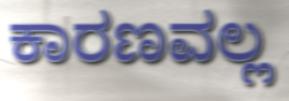
ಕಾರಣವಲ್ಲ